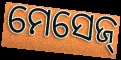
ମେସେଜ୍